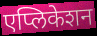
एप्लिकेशन